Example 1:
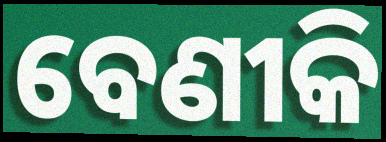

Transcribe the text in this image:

ବେଣୀକି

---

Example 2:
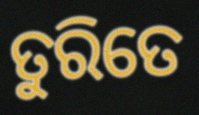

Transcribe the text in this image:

ତୁରିତେ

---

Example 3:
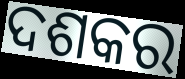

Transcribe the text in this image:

ଦଶକର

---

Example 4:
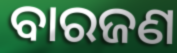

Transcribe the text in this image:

ବାରଜଣ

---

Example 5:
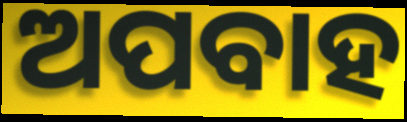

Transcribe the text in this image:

ଅପବାହ